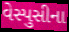
વેસ્પુસીના